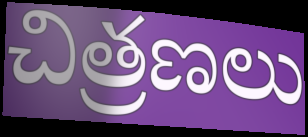
చిత్రణలు